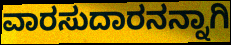
ವಾರಸುದಾರನನ್ನಾಗಿ